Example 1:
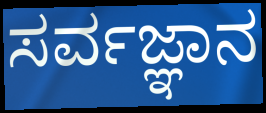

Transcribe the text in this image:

ಸರ್ವಜ್ಞಾನ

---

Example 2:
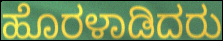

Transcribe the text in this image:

ಹೊರಳಾಡಿದರು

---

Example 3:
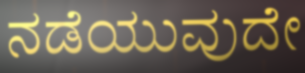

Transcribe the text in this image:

ನಡೆಯುವುದೇ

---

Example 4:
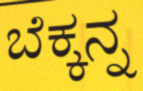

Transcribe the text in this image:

ಬೆಕ್ಕನ್ನ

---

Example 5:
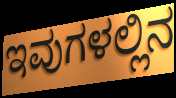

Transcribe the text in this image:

ಇವುಗಳಲ್ಲಿನ